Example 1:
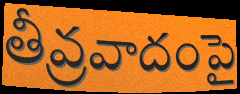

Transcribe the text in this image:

తీవ్రవాదంపై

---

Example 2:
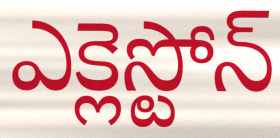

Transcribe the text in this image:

ఎక్లెస్టోన్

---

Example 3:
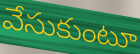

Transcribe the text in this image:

వేసుకుంటూ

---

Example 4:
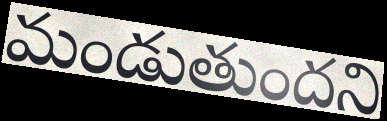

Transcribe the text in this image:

మండుతుందని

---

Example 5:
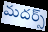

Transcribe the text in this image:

మదర్స్